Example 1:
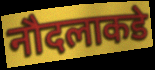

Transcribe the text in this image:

नौदलाकडे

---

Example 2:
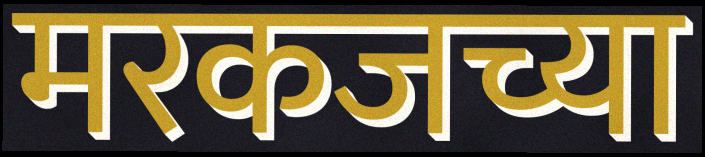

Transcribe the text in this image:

मरकजच्या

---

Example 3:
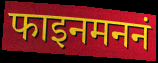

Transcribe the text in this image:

फाइनमननं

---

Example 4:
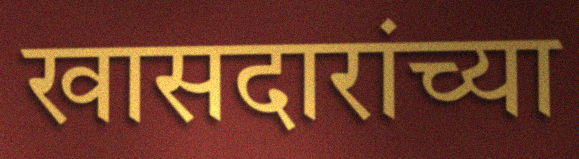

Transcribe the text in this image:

खासदारांच्या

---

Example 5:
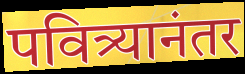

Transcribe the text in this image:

पवित्र्यानंतर